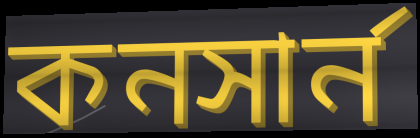
কনসার্ন